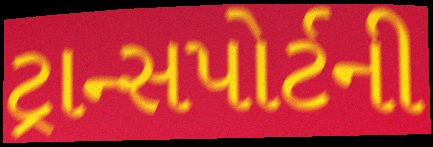
ટ્રાન્સપોર્ટની